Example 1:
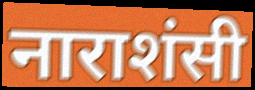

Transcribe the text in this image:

नाराशंसी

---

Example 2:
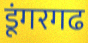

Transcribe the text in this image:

डूंगरगढ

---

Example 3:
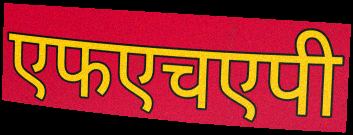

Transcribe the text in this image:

एफएचएपी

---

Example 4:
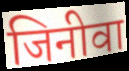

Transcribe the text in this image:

जिनीवा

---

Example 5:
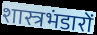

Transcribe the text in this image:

शास्त्रभंडारों